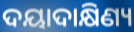
ଦୟାଦାକ୍ଷିଣ୍ୟ